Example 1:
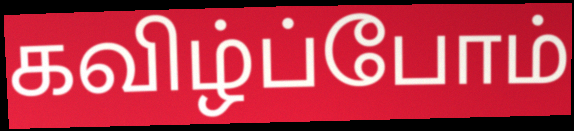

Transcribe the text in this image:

கவிழ்ப்போம்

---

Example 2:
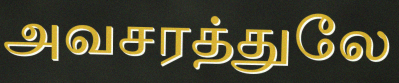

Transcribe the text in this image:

அவசரத்துலே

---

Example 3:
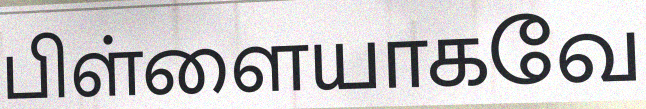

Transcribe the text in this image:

பிள்ளையாகவே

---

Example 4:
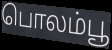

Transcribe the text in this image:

பொலம்பூ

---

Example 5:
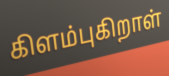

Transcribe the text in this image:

கிளம்புகிறாள்